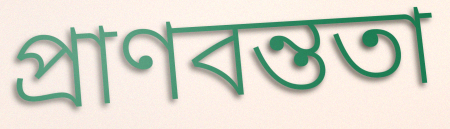
প্রাণবন্ততা